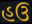
હઉ